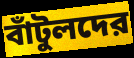
বাঁটুলদের